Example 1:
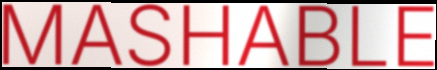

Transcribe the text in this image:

MASHABLE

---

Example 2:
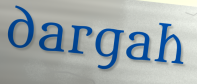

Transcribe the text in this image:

dargah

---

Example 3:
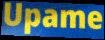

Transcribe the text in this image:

Upame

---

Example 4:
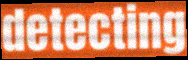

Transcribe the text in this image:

detecting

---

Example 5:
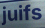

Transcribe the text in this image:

juifs